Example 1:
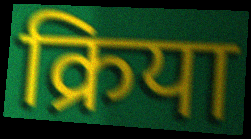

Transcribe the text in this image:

क्रिया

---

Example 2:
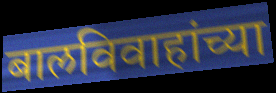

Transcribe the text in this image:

बालविवाहांच्या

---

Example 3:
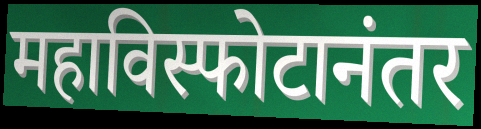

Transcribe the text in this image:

महाविस्फोटानंतर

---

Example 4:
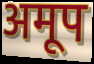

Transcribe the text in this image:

अमूप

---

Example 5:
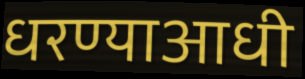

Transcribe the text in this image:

धरण्याआधी